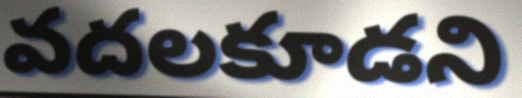
వదలకూడని